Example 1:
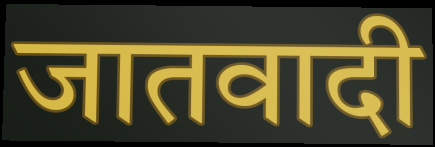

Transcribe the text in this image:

जातवादी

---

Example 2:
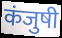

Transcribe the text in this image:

कंजुषी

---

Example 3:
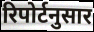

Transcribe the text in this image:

रिपोर्टनुसार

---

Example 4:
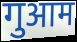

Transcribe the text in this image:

गुआम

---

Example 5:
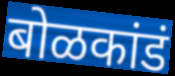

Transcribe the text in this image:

बोळकांडं